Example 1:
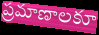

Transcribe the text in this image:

ప్రమాణాలకూ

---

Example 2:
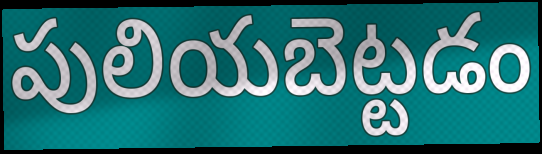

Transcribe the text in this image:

పులియబెట్టడం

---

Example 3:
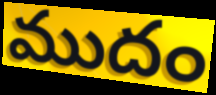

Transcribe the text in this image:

ముదం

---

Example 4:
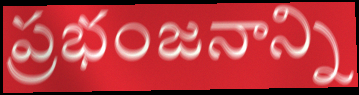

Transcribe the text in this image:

ప్రభంజనాన్ని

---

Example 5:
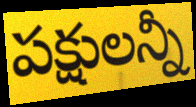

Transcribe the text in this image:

పక్షులన్నీ